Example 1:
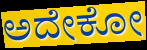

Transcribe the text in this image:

ಅದೇಕೋ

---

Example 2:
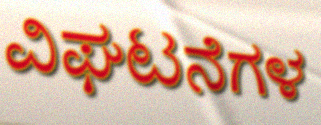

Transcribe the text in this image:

ವಿಘಟನೆಗಳ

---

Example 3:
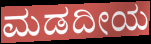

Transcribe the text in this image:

ಮಡದೀಯ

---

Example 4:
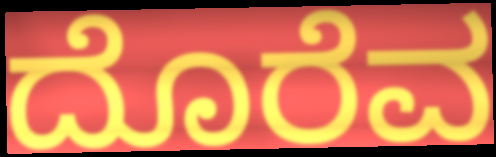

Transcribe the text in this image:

ದೊರೆವ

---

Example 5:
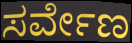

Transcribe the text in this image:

ಸರ್ವೇಣ